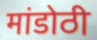
मांडोठी